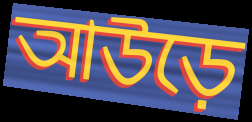
আউড়ে